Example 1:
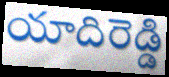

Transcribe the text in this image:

యాదిరెడ్డి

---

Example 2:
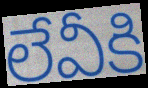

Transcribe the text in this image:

లేవీకి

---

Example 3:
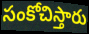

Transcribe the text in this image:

సంకోచిస్తారు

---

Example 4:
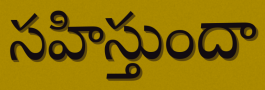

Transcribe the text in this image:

సహిస్తుందా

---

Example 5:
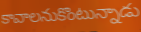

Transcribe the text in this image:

కావాలనుకొంటున్నాడు